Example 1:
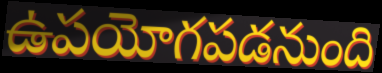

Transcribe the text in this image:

ఉపయోగపడనుంది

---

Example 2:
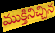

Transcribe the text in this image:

ముక్తినిచ్చిన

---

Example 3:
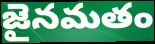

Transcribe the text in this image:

జైనమతం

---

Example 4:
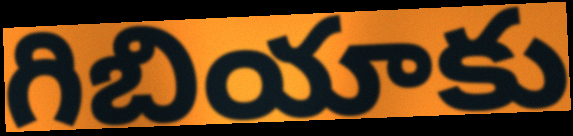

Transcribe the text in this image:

గిబియాకు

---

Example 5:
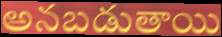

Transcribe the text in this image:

అనబడుతాయి